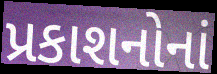
પ્રકાશનોનાં